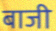
बाजी